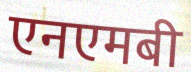
एनएमबी